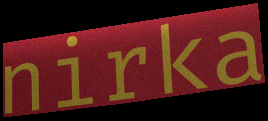
nirka